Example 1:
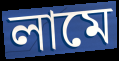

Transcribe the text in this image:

লামে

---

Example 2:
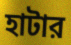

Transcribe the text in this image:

হাটার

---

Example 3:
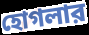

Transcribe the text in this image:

হোগলার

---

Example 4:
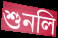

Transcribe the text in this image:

শুনলি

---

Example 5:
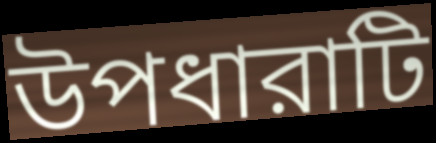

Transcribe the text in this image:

উপধারাটি